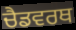
ਚੈਡਵਰਥ